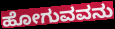
ಹೋಗುವವನು